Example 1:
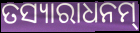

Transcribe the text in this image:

ତସ୍ୟାରାଧନମ୍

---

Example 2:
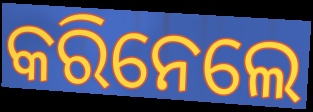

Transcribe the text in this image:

କରିନେଲେ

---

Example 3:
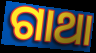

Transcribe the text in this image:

ଗାଥା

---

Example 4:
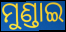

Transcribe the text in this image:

ମୁଣ୍ଡାଇ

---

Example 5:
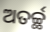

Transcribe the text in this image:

ଅତର୍ଚ୍ଛ